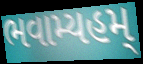
ભવામ્યહમ્